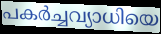
പകർച്ചവ്യാധിയെ